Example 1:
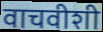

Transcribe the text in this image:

वाचवीशी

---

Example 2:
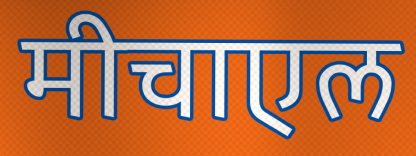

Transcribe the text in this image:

मीचाएल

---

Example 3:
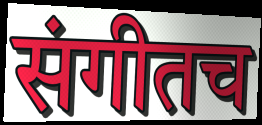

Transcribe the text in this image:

संगीतच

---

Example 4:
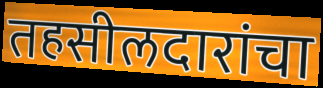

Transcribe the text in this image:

तहसीलदारांचा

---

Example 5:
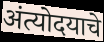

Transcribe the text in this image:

अंत्योदयाचे